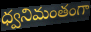
ధ్వనిమంతంగా